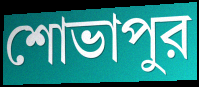
শোভাপুর